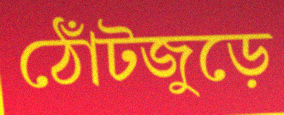
ঠোঁটজুড়ে